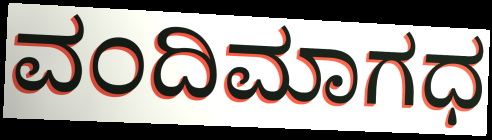
ವಂದಿಮಾಗಧ